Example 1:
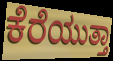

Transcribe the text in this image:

ಕೆರೆಯುತ್ತಾ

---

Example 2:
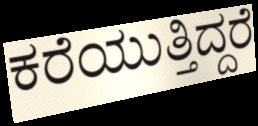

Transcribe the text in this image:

ಕರೆಯುತ್ತಿದ್ದರೆ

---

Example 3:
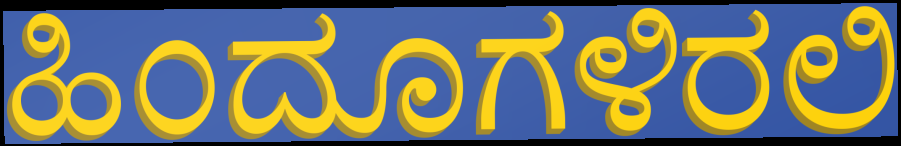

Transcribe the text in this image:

ಹಿಂದೂಗಳಿರಲಿ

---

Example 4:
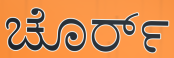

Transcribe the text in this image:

ಚೊರ್ರ್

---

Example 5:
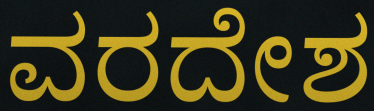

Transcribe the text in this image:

ವರದೇಶ